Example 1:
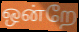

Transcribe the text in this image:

ஒன்றே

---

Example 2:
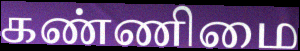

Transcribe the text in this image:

கண்ணிமை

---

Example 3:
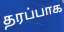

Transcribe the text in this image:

தரப்பாக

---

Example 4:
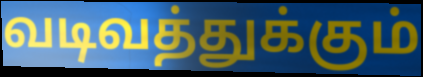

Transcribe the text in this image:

வடிவத்துக்கும்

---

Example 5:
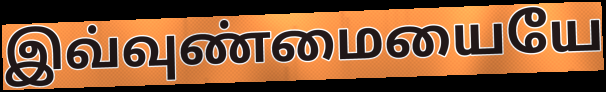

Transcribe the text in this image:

இவ்வுண்மையையே